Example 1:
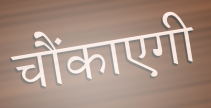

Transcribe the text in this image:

चौंकाएगी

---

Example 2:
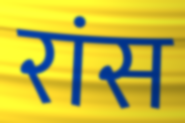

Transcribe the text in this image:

रांस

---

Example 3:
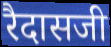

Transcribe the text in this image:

रैदासजी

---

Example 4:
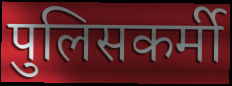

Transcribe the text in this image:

पुलिसकर्मी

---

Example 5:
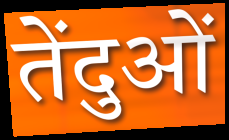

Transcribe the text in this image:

तेंदुओं